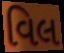
વિલ